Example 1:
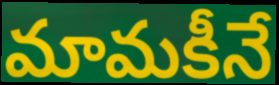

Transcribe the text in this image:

మామకీనే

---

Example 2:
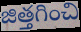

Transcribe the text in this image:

జిత్తగించి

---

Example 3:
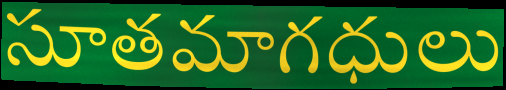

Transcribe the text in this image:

సూతమాగధులు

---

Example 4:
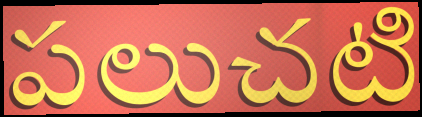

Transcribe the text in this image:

పలుచటి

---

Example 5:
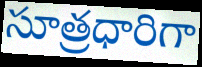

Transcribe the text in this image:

సూత్రధారిగా